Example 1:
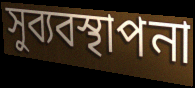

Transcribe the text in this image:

সুব্যবস্থাপনা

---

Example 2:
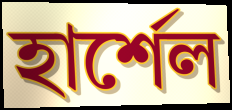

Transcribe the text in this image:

হার্শেল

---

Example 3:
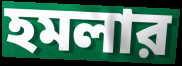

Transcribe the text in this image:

হমলার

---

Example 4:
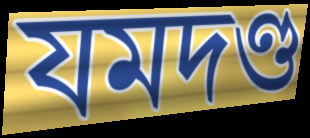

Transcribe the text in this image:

যমদণ্ড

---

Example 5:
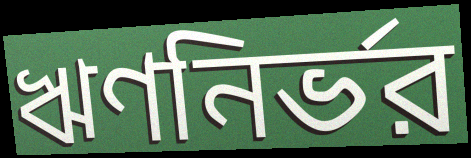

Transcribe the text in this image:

ঋণনির্ভর